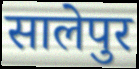
सालेपुर